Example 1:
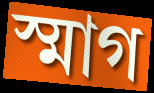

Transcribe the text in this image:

স্মাগ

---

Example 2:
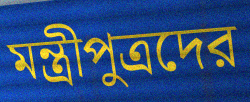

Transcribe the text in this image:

মন্ত্রীপুত্রদের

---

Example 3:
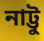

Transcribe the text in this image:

নাট্টু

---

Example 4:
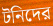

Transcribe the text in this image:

টনিদের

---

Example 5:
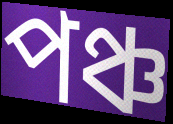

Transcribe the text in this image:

পঞ্চ